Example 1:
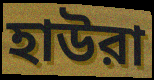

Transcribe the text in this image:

হাউরা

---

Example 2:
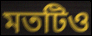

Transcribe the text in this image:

মতটিও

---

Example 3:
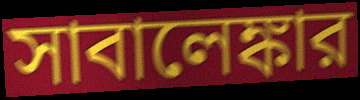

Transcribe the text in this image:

সাবালেঙ্কার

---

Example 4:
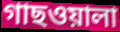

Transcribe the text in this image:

গাছওয়ালা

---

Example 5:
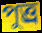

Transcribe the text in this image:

পুত্ত্র